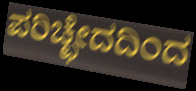
ಪರಿಚ್ಛೇದದಿಂದ